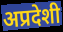
अप्रदेशी